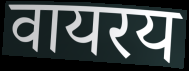
वायरय